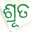
ଶ୍ରୂତ